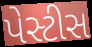
પેસ્ટીસ